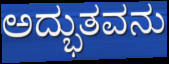
ಅದ್ಭುತವನು